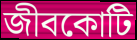
জীবকোটি